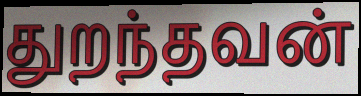
துறந்தவன்